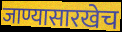
जाण्यासारखेच